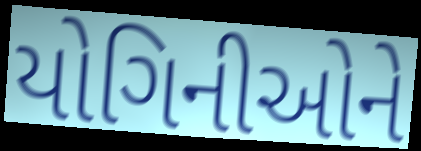
યોગિનીઓને